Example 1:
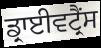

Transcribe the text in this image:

ਡ੍ਰਾਈਵਟ੍ਰੈਂਸ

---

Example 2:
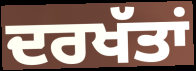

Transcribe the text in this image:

ਦਰਖੱਤਾਂ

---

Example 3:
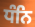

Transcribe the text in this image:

ਧੰਨਿ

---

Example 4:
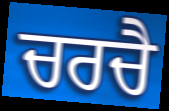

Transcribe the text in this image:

ਚਰਚੈ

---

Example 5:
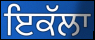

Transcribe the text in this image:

ਇਕੱਲਾ